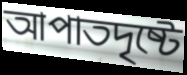
আপাতদৃষ্টে